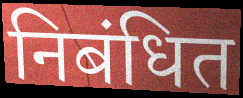
निबंधित